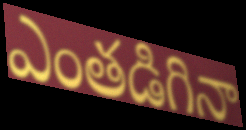
ఎంతడిగినా